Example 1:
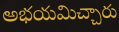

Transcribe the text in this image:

అభయమిచ్చారు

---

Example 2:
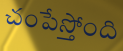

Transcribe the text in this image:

చంపేస్తోంది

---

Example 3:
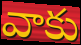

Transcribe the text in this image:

వాకు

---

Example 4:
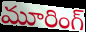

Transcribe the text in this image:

మూరింగ్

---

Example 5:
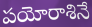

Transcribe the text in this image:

పయోరాశినే